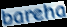
bareha